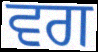
ਵਗ